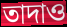
তাদাও